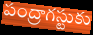
పంద్రాగస్టుకు